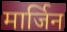
मार्जिन